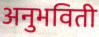
अनुभविती